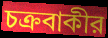
চক্রবাকীর